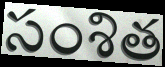
సంశిత